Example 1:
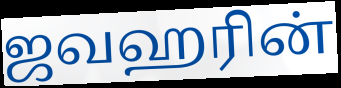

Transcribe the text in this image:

ஜவஹரின்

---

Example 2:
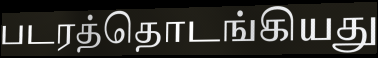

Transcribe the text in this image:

படரத்தொடங்கியது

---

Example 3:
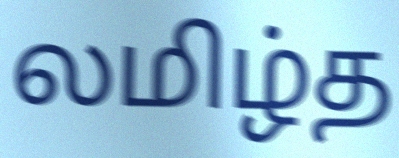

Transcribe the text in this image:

லமிழ்த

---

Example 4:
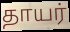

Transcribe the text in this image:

தாயர்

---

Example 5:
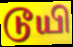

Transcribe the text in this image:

டூயி